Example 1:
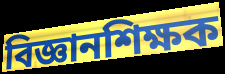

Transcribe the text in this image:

বিজ্ঞানশিক্ষক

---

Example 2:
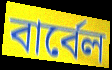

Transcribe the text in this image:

বার্বেল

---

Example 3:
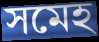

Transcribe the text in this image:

সমেহ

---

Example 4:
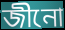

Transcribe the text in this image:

জীনো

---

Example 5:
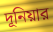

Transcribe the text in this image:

দূনিয়ার